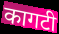
कागटी